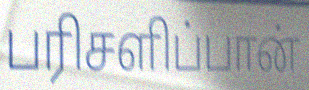
பரிசளிப்பான்